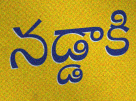
నడ్డాకి